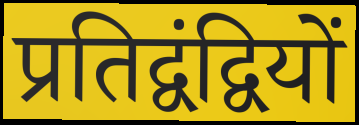
प्रतिद्वंद्वियों